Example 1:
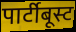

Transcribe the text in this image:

पार्टीबूस्ट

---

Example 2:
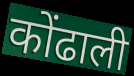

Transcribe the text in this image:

कोंढाली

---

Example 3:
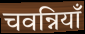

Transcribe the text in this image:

चवन्नियाँ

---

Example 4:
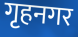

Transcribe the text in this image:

गृहनगर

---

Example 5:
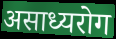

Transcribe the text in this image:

असाध्यरोग